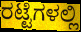
ರಟ್ಟೆಗಳಲ್ಲಿ